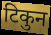
टिकुन